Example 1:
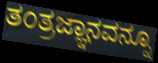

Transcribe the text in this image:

ತಂತ್ರಜ್ಞಾನವನ್ನೂ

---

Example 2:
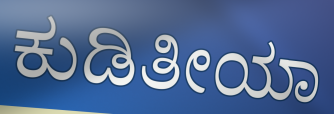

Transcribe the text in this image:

ಕುಡಿತೀಯಾ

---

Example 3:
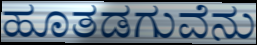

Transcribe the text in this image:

ಹೂತಡಗುವೆನು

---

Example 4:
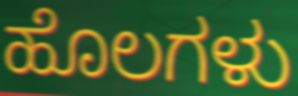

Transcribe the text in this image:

ಹೊಲಗಳು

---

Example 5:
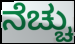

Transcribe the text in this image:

ನೆಚ್ಚು